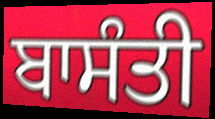
ਬਾਸੰਤੀ